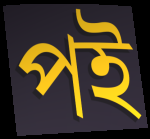
পই